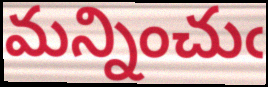
మన్నించుఁ